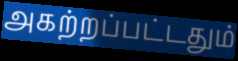
அகற்றப்பட்டதும்